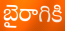
బైరాగికి